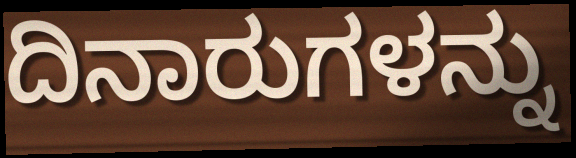
ದಿನಾರುಗಳನ್ನು